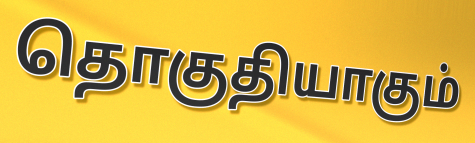
தொகுதியாகும்